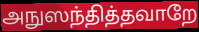
அநுஸந்தித்தவாறே